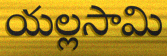
యల్లసామి